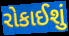
રોકાઈશું